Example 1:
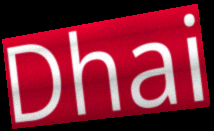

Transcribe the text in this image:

Dhai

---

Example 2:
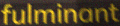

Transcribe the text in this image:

fulminant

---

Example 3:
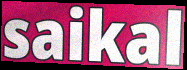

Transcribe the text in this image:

saikal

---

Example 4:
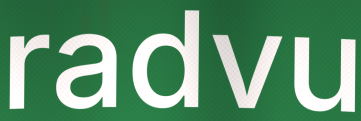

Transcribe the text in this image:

radvu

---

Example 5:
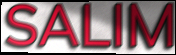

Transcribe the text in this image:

SALIM